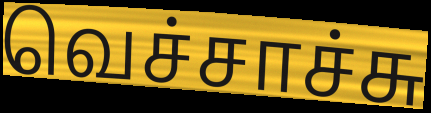
வெச்சாச்சு